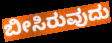
ಬೀಸಿರುವುದು